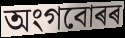
অংগবোৰৰ